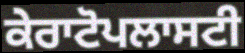
ਕੇਰਾਟੋਪਲਾਸਟੀ